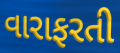
વારાફરતી